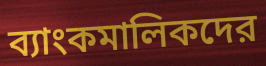
ব্যাংকমালিকদের